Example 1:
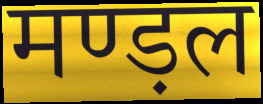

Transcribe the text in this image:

मण्ड़ल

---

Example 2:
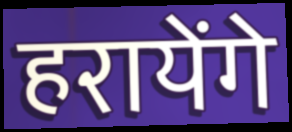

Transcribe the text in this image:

हरायेंगे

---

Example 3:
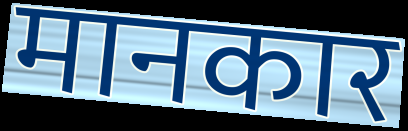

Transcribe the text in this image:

मानकार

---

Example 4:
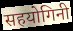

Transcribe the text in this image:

सहयोगिनी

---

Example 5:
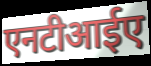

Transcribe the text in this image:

एनटीआईए